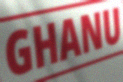
GHANU